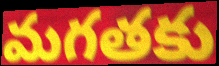
మగతకు